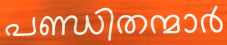
പണ്ഡിതന്മാർ